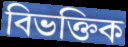
বিভক্তিক